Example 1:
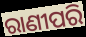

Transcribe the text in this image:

ରାଣୀପରି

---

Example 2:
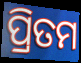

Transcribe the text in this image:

ପ୍ରିତମ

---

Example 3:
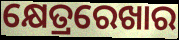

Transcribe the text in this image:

କ୍ଷେତ୍ରରେଖାର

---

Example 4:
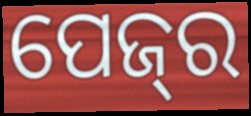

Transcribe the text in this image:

ପେଜ୍‌ର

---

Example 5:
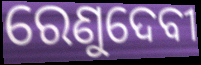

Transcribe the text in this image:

ରେଣୁଦେବୀ